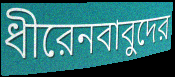
ধীরেনবাবুদের